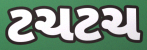
ટચટચ